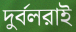
দুর্বলরাই